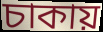
চাকায়